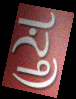
ಸ್ತ್ರ